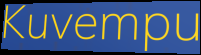
Kuvempu